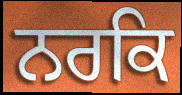
ਨਰਕਿ